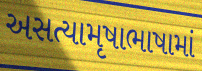
અસત્યામૃષાભાષામાં